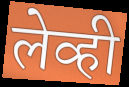
लेव्ही